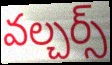
వల్చర్స్